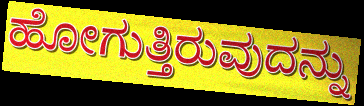
ಹೋಗುತ್ತಿರುವುದನ್ನು